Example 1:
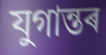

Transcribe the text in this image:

যুগান্তৰ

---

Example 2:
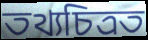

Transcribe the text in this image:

তথ্যচিত্ৰত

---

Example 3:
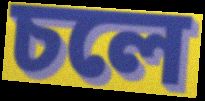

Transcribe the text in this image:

চলে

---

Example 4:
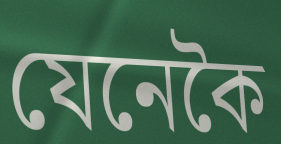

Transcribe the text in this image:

যেনেকৈ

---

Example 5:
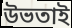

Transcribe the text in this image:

উভতাই